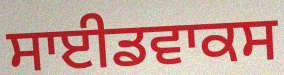
ਸਾਈਡਵਾਕਸ